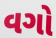
વગો